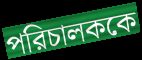
পরিচালককে